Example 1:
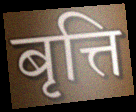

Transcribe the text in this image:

बृत्ति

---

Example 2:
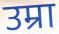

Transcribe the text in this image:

उम्रा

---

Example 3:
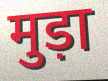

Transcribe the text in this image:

मुड़ा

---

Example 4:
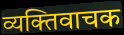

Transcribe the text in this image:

व्यक्तिवाचक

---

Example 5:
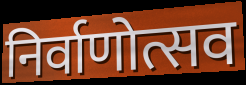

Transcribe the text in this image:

निर्वाणोत्सव